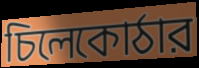
চিলেকোঠার